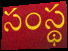
సంస్థ